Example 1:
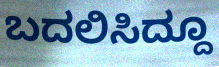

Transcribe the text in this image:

ಬದಲಿಸಿದ್ದೂ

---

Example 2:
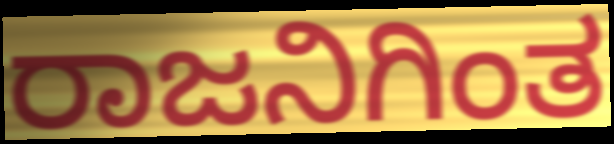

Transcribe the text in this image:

ರಾಜನಿಗಿಂತ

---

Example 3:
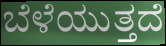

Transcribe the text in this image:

ಬೆಳೆಯುತ್ತದೆ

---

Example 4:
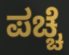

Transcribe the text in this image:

ಪಚ್ಚೆ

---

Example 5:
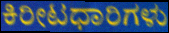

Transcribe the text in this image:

ಕಿರೀಟಧಾರಿಗಳು